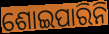
ଶୋଇପାରିନି